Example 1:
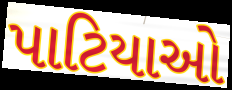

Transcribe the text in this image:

પાટિયાઓ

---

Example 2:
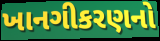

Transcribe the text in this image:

ખાનગીકરણનો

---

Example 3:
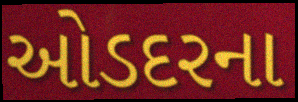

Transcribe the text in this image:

ઓડદરના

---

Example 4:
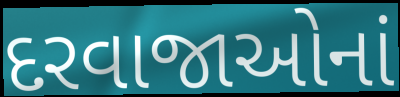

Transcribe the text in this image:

દરવાજાઓનાં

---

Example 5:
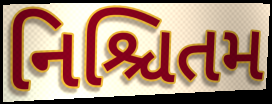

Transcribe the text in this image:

નિશ્ચિતમ